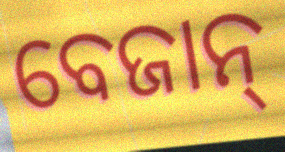
ବେଜାନ୍